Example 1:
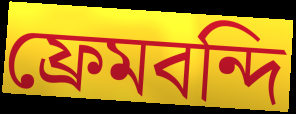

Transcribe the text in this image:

ফ্রেমবন্দি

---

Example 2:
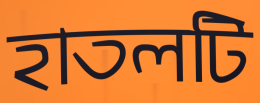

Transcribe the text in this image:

হাতলটি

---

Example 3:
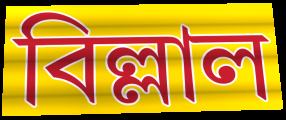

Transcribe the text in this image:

বিল্লাল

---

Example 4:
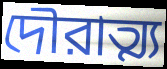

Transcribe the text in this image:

দৌরাত্ম্য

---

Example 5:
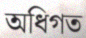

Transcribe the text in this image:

অধিগত